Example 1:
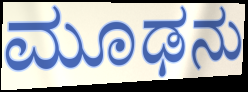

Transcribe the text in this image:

ಮೂಢನು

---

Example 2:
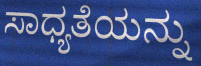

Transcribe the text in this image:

ಸಾಧ್ಯತೆಯನ್ನು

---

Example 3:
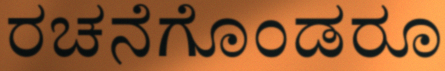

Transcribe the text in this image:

ರಚನೆಗೊಂಡರೂ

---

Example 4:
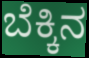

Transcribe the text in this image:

ಬೆಕ್ಕಿನ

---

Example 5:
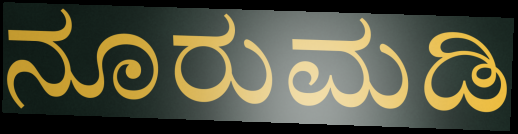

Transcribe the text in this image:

ನೂರುಮಡಿ